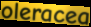
oleracea